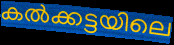
കൽക്കട്ടയിലെ